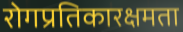
रोगप्रतिकारक्षमता